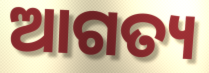
ଆଗତ୍ୟ